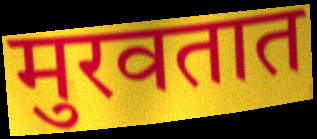
मुरवतात